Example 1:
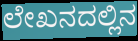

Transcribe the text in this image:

ಲೇಖನದಲ್ಲಿನ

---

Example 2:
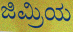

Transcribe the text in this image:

ಜಿಮ್ರಿಯ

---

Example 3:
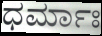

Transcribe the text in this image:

ಧರ್ಮಾಃ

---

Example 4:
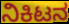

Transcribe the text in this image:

ನಿಕಿಟನ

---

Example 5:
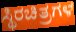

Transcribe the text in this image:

ಸ್ಥಿರಚಿತ್ರಗಳ